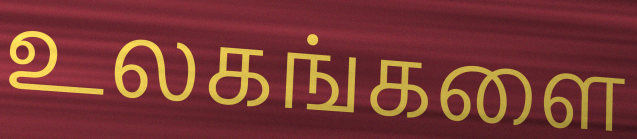
உலகங்களை